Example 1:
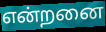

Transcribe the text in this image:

என்றனை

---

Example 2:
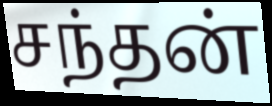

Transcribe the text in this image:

சந்தன்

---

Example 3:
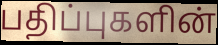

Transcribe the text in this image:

பதிப்புகளின்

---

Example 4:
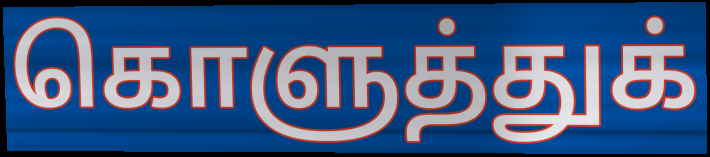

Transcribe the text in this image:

கொளுத்துக்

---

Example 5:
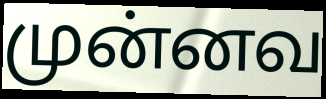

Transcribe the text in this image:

முன்னவ